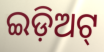
ଇଡ଼ିଅଟ୍